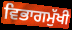
ਵਿਭਾਗਮੁੱਖੀ